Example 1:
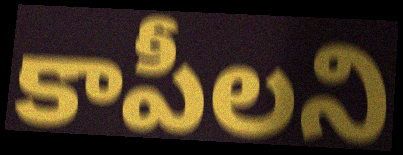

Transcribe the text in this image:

కాపీలని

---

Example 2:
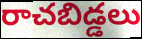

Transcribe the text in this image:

రాచబిడ్డలు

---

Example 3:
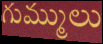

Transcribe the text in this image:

గుమ్ములు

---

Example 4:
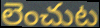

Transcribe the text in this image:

లెంచుట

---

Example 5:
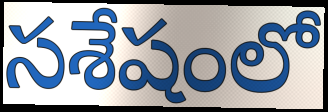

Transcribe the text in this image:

సశేషంలో